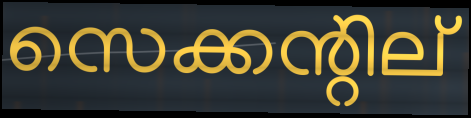
സെക്കന്റില്